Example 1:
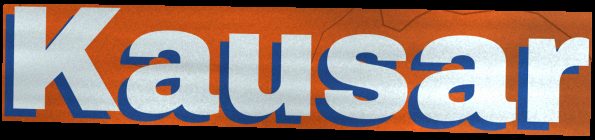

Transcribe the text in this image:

Kausar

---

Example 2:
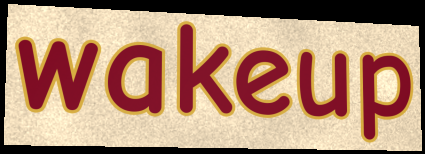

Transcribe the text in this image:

wakeup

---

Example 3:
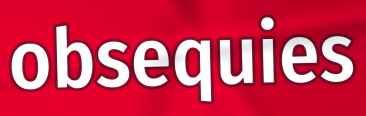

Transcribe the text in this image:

obsequies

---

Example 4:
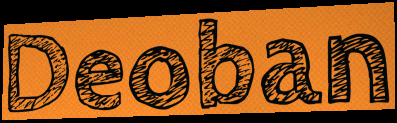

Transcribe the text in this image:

Deoban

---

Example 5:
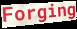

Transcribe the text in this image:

Forging